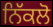
ਨਿੱਕਲੋ